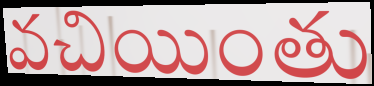
వచియింతు